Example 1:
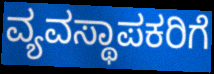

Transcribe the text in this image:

ವ್ಯವಸ್ಥಾಪಕರಿಗೆ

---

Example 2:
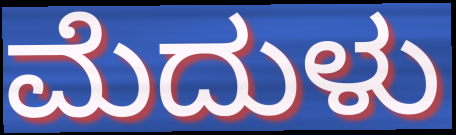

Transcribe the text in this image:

ಮೆದುಳು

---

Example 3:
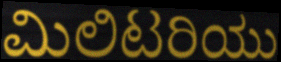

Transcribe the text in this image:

ಮಿಲಿಟರಿಯು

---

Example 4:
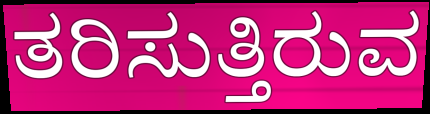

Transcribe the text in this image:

ತರಿಸುತ್ತಿರುವ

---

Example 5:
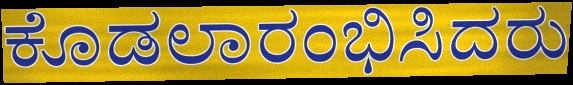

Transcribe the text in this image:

ಕೊಡಲಾರಂಭಿಸಿದರು